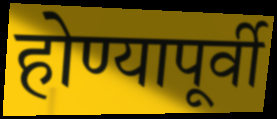
होण्यापूर्वी